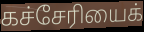
கச்சேரியைக்